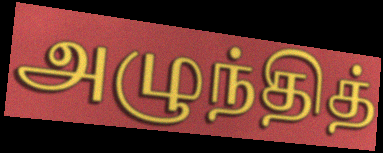
அழுந்தித்